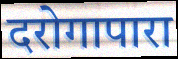
दरोगापारा